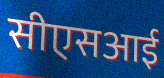
सीएसआई